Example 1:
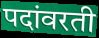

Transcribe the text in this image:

पदांवरती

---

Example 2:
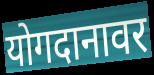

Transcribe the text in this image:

योगदानावर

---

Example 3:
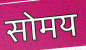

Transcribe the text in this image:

सोमय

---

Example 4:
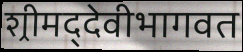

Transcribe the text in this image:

श्रीमद्‌देवीभागवत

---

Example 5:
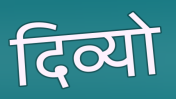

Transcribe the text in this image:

दिव्यो